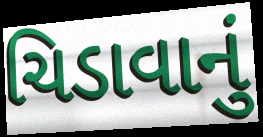
ચિડાવાનું